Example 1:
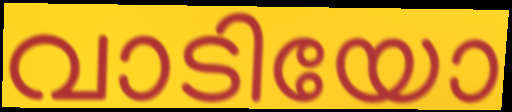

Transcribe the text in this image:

വാടിയോ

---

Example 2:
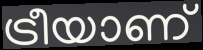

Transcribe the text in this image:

ട്രീയാണ്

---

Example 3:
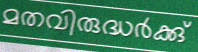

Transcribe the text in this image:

മതവിരുദ്ധർക്കു്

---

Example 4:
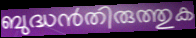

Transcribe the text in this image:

ബുദ്ധൻതിരുത്തുക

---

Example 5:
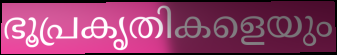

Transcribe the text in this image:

ഭൂപ്രകൃതികളെയും